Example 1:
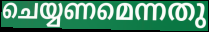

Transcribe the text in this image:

ചെയ്യണമെന്നതു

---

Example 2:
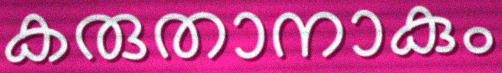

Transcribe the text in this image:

കരുതാനാകും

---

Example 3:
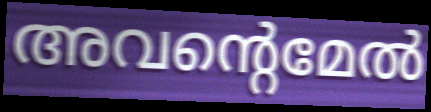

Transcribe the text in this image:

അവന്റെമേൽ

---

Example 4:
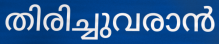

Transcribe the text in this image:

തിരിച്ചുവരാൻ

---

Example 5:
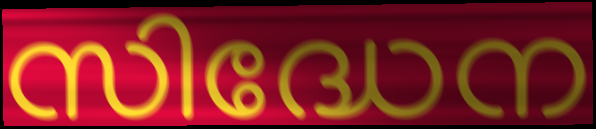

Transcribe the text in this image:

സിദ്ധേന